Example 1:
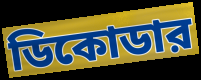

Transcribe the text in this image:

ডিকোডার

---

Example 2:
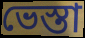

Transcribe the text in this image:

ভেস্তা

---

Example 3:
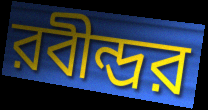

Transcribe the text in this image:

রবীন্দ্রর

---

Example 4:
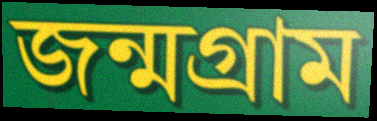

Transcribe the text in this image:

জন্মগ্রাম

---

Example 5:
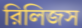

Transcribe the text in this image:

রিলিজস